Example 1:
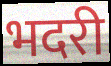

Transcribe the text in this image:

भदरी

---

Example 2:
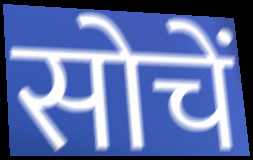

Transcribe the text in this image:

सोचें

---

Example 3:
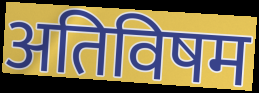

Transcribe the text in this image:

अतिविषम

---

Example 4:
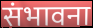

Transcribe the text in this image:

संभावना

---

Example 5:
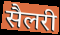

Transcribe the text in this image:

सैलरी